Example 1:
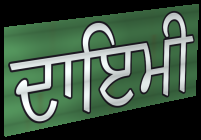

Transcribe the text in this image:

ਦਾਇਮੀ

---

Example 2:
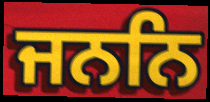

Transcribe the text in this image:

ਜਨਨਿ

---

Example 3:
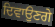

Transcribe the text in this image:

ਦਿਵਾਉਣਗੇ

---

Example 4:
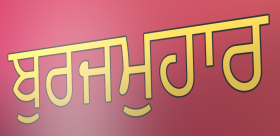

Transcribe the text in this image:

ਬੁਰਜਮੁਹਾਰ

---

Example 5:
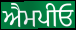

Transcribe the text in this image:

ਐਮਪੀਓ